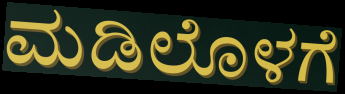
ಮಡಿಲೊಳಗೆ